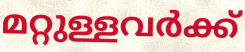
മറ്റുള്ളവർക്ക്